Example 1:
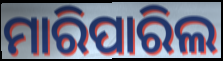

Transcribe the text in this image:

ମାରିପାରିଲ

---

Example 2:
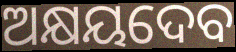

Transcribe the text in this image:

ଅକ୍ଷୟଦେବ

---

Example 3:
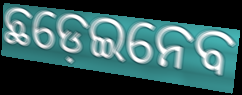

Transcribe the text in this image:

ଛଡ଼େଇନେବ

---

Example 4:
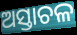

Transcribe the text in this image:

ଅସ୍ତାଚଳ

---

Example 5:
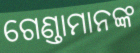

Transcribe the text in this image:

ଗେଣ୍ଡାମାନଙ୍କ